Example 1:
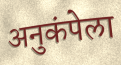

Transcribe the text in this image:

अनुकंपेला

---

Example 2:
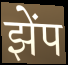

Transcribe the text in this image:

झेंप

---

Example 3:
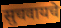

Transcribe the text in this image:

सुचवायचे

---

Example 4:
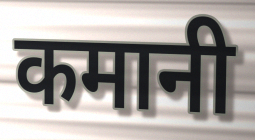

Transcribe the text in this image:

कमानी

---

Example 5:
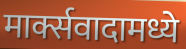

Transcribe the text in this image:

मार्क्सवादामध्ये